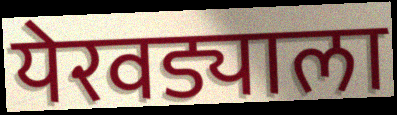
येरवड्याला